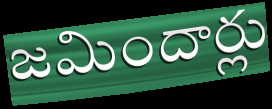
జమిందార్లు